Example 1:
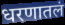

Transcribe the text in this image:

धरणातलं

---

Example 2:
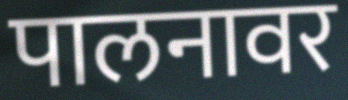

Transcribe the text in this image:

पालनावर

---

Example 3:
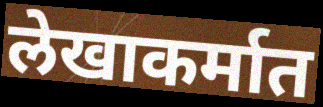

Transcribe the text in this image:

लेखाकर्मात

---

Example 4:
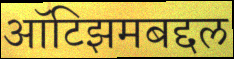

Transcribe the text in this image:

ऑटिझमबद्दल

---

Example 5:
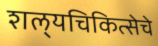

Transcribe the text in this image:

शल्यचिकित्सेचे